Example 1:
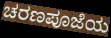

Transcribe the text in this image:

ಚರಣಪೂಜೆಯ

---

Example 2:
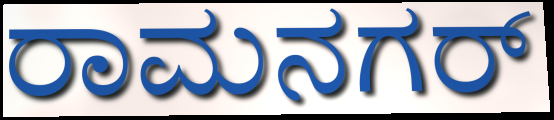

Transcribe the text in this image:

ರಾಮನಗರ್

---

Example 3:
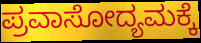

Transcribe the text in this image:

ಪ್ರವಾಸೋದ್ಯಮಕ್ಕೆ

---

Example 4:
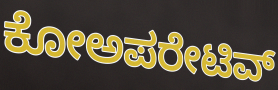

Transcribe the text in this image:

ಕೋಅಪರೇಟಿವ್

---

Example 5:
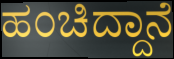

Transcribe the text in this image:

ಹಂಚಿದ್ದಾನೆ